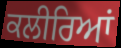
ਕਲੀਰਿਆਂ